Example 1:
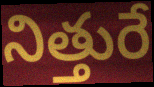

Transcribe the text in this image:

నిత్తురే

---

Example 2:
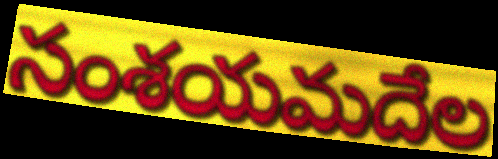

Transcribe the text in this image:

సంశయమదేల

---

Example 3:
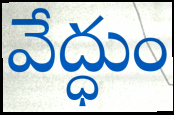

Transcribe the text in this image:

వేద్ధుం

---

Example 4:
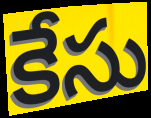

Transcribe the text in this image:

కేసు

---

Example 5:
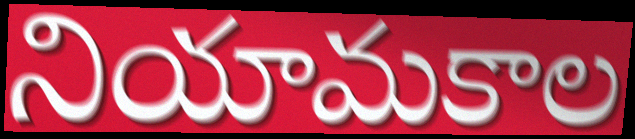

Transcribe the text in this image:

నియామకాల